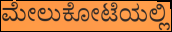
ಮೇಲುಕೋಟೆಯಲ್ಲಿ